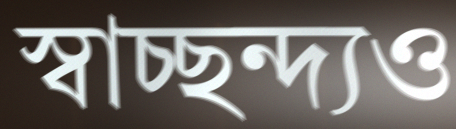
স্বাচ্ছন্দ্যও